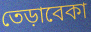
তেড়াবেকা